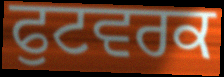
ਫੁਟਵਰਕ